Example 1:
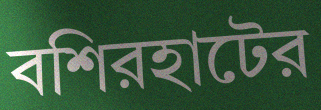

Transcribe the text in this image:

বশিরহাটের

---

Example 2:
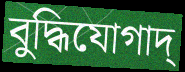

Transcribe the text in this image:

বুদ্ধিযোগাদ্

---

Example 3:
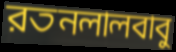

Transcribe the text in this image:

রতনলালবাবু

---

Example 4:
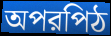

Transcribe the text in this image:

অপরপিঠ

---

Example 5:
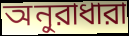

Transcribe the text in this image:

অনুরাধারা